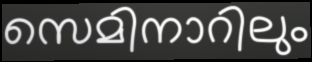
സെമിനാറിലും